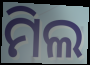
ମିଲ